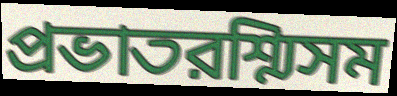
প্রভাতরশ্মিসম